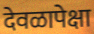
देवळापेक्षा